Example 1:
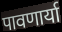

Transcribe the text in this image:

पावणार्या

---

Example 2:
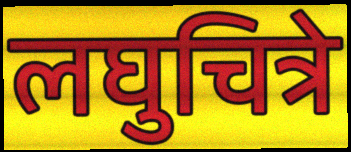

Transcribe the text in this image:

लघुचित्रे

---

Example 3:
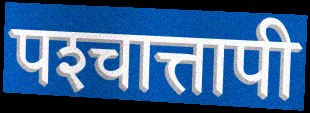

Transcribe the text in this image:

पश्‍चात्तापी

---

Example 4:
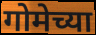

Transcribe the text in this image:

गोमेच्या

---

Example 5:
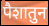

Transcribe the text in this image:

पैशातुन